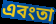
এবংতা